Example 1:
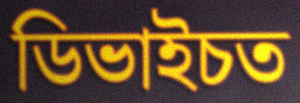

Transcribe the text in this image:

ডিভাইচত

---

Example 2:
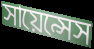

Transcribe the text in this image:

সায়েন্সেস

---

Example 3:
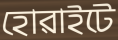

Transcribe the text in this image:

হোৱাইটে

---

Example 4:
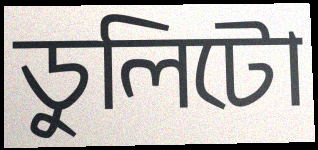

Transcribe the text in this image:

ডুলিটো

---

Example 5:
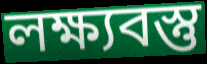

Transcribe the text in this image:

লক্ষ্যবস্তু